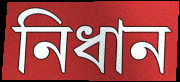
নিধান